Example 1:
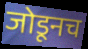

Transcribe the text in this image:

जोडूनच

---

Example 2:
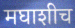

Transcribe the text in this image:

मघाशीच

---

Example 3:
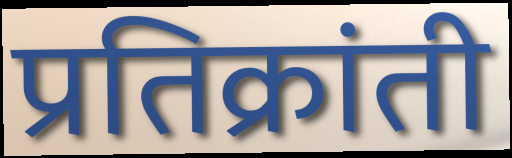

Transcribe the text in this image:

प्रतिक्रांती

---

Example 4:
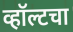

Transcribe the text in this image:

व्हॉल्टचा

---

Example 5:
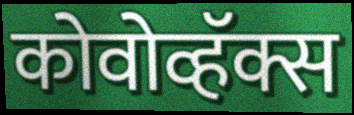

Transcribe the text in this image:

कोवोव्हॅक्स